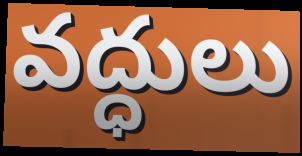
వద్ధులు